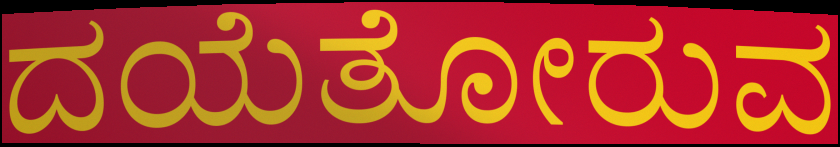
ದಯೆತೋರುವ